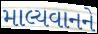
માલ્યવાનને